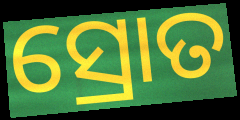
ସ୍ରୋତ